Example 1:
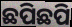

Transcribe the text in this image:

ଛପିଛପି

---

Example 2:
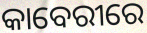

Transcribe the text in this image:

କାବେରୀରେ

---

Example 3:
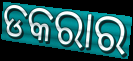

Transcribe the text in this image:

ଡକରାର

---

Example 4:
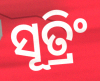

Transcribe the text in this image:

ସୂତ୍ରିଂ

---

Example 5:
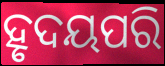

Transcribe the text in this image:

ହୃଦୟପରି